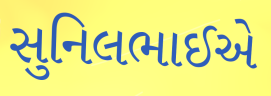
સુનિલભાઈએ